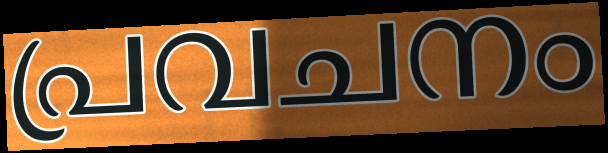
പ്രവചനം